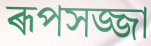
ৰূপসজ্জা